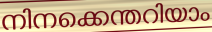
നിനക്കെന്തറിയാം